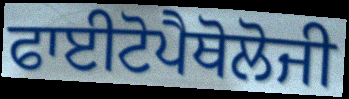
ਫਾਈਟੋਪੈਥੋਲੋਜੀ